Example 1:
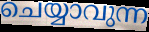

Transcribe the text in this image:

ചെയ്യാവുന്ന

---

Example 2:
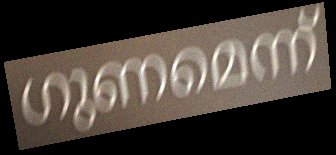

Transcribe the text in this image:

ഗുണമെന്ന്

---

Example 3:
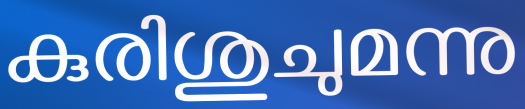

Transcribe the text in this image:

കുരിശുചുമന്നു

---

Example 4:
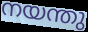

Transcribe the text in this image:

നയന്തു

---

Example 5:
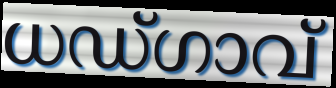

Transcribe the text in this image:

ധഡ്ഗാവ്